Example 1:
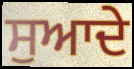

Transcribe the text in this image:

ਸੁਆਦੇ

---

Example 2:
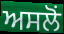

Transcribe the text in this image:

ਅਸਲੋਂ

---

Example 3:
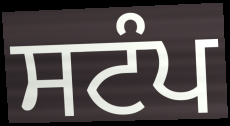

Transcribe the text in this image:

ਸਟੰਪ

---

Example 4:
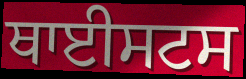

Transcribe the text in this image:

ਥਾਈਸਟਸ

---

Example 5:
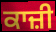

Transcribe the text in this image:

ਕਾਜ਼ੀ